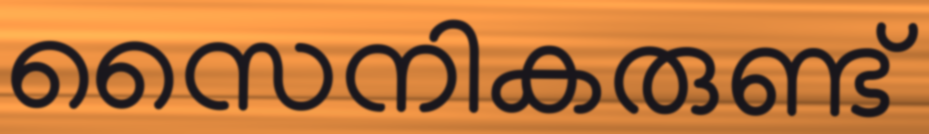
സൈനികരുണ്ട്